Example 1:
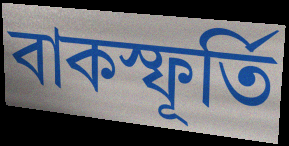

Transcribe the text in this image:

বাকস্ফূর্তি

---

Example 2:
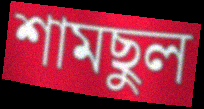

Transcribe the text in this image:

শামছুল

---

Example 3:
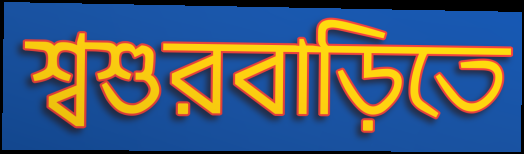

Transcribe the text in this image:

শ্বশুরবাড়িতে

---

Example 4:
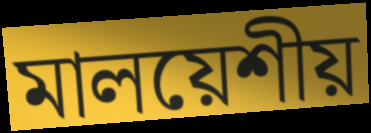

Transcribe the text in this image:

মালয়েশীয়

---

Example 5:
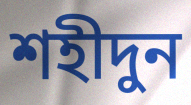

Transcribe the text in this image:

শহীদুন